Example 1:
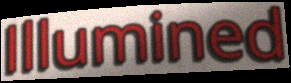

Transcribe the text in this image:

Illumined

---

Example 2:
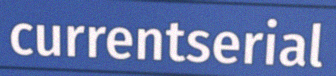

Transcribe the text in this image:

currentserial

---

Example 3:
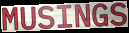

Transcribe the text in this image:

MUSINGS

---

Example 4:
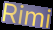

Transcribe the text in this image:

Rimi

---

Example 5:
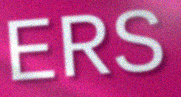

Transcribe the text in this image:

ERS